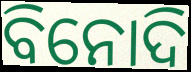
ବିନୋଦି